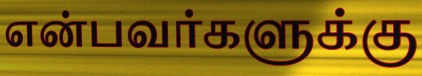
என்பவர்களுக்கு